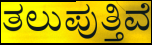
ತಲುಪುತ್ತಿವೆ